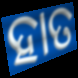
ହାତ